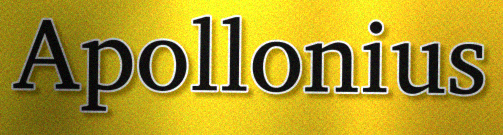
Apollonius